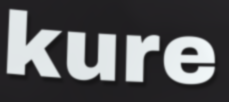
kure